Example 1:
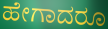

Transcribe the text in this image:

ಹೇಗಾದರೂ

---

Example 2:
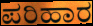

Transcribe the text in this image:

ಪರಿಹಾರ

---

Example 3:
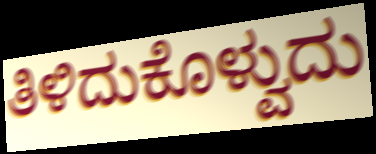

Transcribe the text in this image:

ತಿಳಿದುಕೊಳ್ವುದು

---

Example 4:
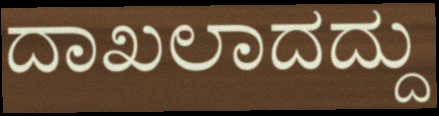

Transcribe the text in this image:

ದಾಖಲಾದದ್ದು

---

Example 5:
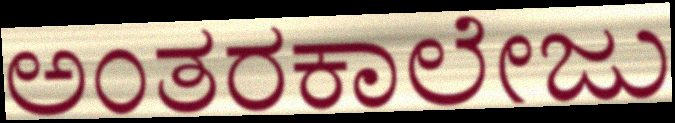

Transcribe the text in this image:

ಅಂತರಕಾಲೇಜು